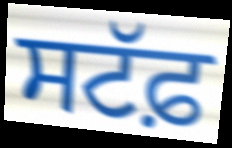
ਸਟੱਫ਼